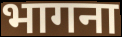
भागना